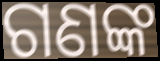
ଗଣଙ୍କ